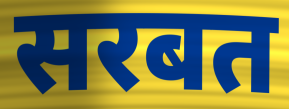
सरबत